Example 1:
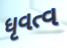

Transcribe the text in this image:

ધૃવત્વ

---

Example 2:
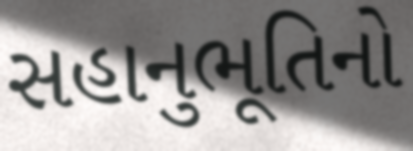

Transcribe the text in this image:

સહાનુભૂતિનો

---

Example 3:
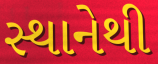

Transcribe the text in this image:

સ્થાનેથી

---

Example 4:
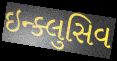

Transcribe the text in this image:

ઇન્ક્લુસિવ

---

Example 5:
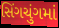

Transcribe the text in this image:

સિંગચુંગમાં